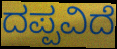
ದಪ್ಪವಿದೆ